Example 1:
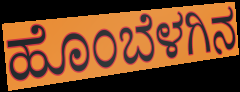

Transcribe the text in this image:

ಹೊಂಬೆಳಗಿನ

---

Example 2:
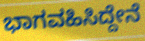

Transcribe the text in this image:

ಭಾಗವಹಿಸಿದ್ದೇನೆ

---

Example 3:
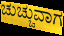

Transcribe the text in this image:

ಚುಚ್ಚುವಾಗ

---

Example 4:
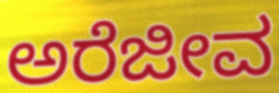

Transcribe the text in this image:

ಅರೆಜೀವ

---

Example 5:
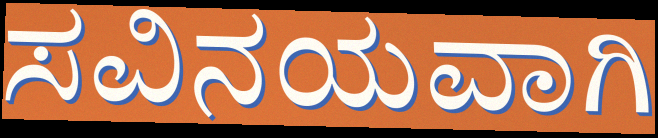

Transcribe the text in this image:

ಸವಿನಯವಾಗಿ